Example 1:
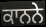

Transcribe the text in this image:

ਕਾਨਨੇ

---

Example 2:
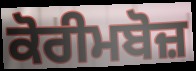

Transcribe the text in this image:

ਕੋਰੀਮਬੋਜ਼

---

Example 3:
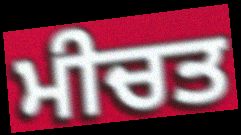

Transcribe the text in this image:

ਮੀਚਤ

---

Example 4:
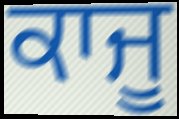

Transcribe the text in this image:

ਕਾਜੂ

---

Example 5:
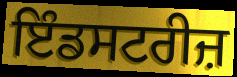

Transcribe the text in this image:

ਇੰਡਸਟਰੀਜ਼